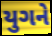
યુગને